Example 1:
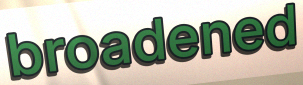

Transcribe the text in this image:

broadened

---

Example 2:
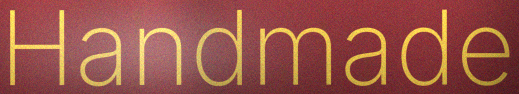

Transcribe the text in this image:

Handmade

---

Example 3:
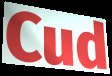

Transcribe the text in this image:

Cud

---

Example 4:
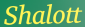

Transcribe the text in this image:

Shalott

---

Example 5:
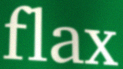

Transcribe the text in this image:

flax